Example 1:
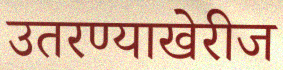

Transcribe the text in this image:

उतरण्याखेरीज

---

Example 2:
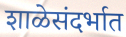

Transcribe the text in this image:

शाळेसंदर्भात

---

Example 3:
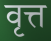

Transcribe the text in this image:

वृत्त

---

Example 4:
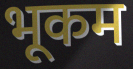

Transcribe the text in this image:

भूकम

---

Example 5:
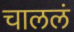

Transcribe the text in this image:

चाललं